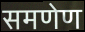
समणेण